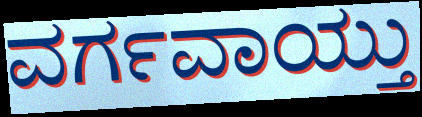
ವರ್ಗವಾಯ್ತು